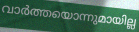
വാർത്തയൊന്നുമായില്ല